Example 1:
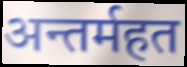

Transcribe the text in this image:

अन्तर्महत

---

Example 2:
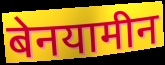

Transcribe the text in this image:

बेनयामीन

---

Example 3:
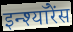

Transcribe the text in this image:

इन्श्यॉरेंस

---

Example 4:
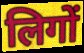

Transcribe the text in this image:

लिगों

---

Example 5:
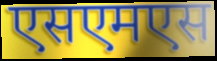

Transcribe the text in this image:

एसएमएस